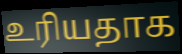
உரியதாக